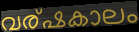
വര്ഷകാലം